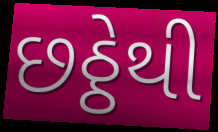
છઠ્ઠેથી